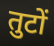
तुटों